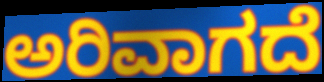
ಅರಿವಾಗದೆ